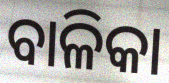
ବାଳିକା